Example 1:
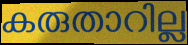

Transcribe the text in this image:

കരുതാറില്ല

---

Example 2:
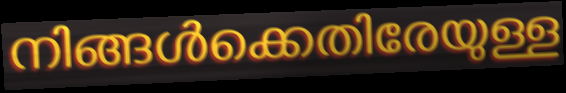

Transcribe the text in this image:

നിങ്ങൾക്കെതിരേയുള്ള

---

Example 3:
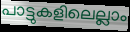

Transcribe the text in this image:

പാട്ടുകളിലെല്ലാം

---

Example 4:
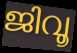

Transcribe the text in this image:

ജിവൂ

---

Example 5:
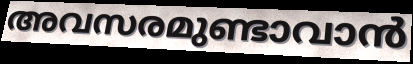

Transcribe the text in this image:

അവസരമുണ്ടാവാൻ